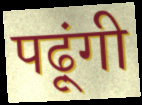
पढ़ूंगी